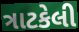
ત્રાટકેલી